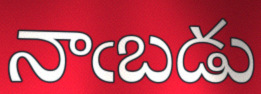
నాఁబడు